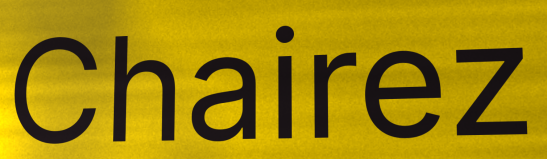
Chairez